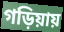
গড়িয়ায়